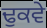
ਢੁਕਵੇ